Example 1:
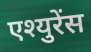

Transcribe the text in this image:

एश्युरेंस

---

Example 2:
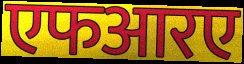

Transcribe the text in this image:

एफआरए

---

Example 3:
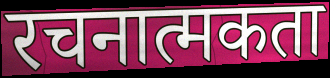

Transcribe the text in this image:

रचनात्मकता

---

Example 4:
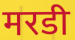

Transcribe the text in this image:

मरडी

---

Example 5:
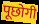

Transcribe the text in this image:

पूछोगी